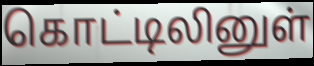
கொட்டிலினுள்